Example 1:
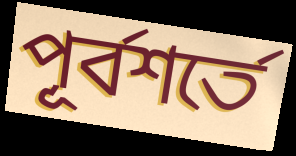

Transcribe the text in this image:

পূর্বশর্তে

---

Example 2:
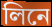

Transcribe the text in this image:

লিনে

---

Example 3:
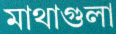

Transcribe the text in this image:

মাথাগুলা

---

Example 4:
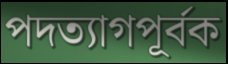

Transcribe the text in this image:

পদত্যাগপূর্বক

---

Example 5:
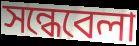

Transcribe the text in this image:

সন্ধেবেলা